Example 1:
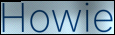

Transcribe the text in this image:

Howie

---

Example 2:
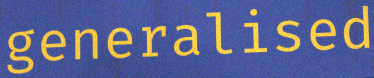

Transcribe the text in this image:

generalised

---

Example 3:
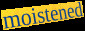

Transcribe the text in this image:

moistened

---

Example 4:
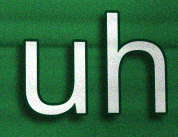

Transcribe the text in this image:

uh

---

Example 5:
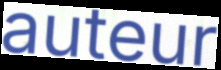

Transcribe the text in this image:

auteur